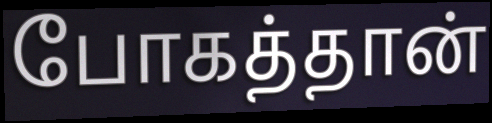
போகத்தான்